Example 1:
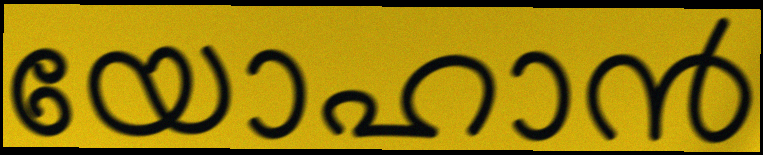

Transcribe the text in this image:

യോഹാൻ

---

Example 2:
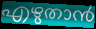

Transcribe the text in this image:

എഴുതാൻ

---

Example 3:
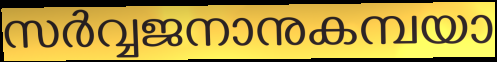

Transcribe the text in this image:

സർവ്വജനാനുകമ്പയാ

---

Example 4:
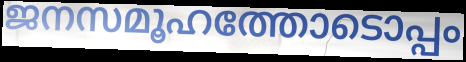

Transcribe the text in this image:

ജനസമൂഹത്തോടൊപ്പം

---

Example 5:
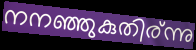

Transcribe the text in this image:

നനഞ്ഞുകുതിര്ന്നു